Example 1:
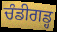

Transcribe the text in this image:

ਚੰਡੀਗਡ੍ਹ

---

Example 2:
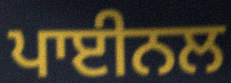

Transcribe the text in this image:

ਪਾਈਨਲ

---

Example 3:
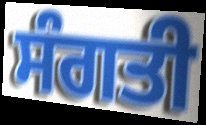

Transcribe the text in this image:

ਸੰਗਤੀ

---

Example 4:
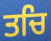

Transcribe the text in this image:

ਤਚਿ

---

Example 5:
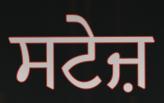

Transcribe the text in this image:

ਸਟੇਜ਼